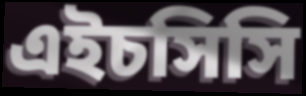
এইচসিসি